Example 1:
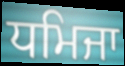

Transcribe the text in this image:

ਧਮਿਜਾ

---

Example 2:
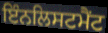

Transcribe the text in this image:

ਇੰਨਲਿਸਟਮੈਂਟ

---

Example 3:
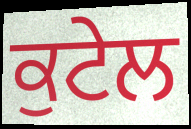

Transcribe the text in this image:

ਕੁਟੇਲ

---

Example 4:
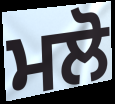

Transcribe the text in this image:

ਮਲੋ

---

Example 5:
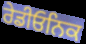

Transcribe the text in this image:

ਰੇਡੀਓਨਿਕ